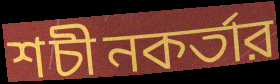
শচীনকর্তার